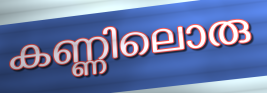
കണ്ണിലൊരു